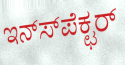
ಇನ್ಸ್‍ಪೆಕ್ಟರ್